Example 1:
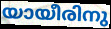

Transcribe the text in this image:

യായീരിനു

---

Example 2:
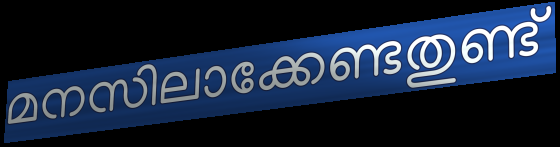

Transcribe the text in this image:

മനസിലാക്കേണ്ടതുണ്ട്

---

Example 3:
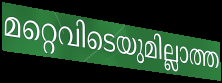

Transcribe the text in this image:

മറ്റെവിടെയുമില്ലാത്ത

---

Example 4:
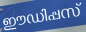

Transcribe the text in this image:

ഈഡിപ്പസ്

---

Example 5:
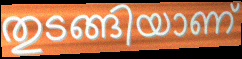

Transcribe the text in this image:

തുടങ്ങിയാണ്